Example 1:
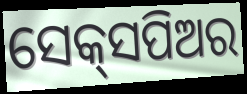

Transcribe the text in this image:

ସେକ୍‌ସପିଅର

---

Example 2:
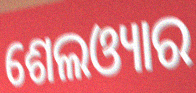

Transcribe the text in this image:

ଶେଲଓ୍ୟାର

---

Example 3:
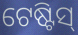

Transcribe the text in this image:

ଟେଷ୍ଟିସ୍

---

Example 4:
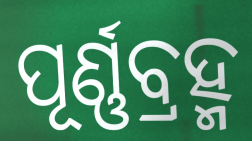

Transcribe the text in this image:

ପୂର୍ଣ୍ଣବ୍ରହ୍ମ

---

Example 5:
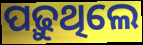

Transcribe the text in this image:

ପଢ଼ୁଥିଲେ